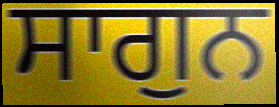
ਸਾਗੁਨ